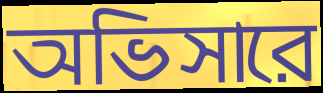
অভিসারে